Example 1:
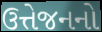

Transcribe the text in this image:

ઉત્તેજનનો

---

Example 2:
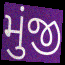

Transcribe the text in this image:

મુંજી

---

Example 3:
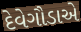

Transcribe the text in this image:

દેવેગૌડાએ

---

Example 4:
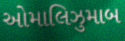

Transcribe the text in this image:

ઓમાલિઝુમાબ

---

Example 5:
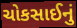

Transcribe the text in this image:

ચોકસાઈનું